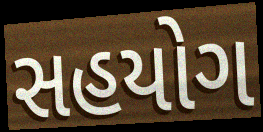
સહયોગ